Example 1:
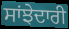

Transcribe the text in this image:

ਸਾਂਝੇਦਾਰੀ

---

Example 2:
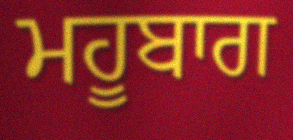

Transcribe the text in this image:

ਮਹੂਬਾਗ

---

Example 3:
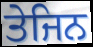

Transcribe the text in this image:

ਤੇਜਿਨ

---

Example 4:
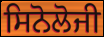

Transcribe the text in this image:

ਸਿਨੋਲੋਜੀ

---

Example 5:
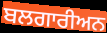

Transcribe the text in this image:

ਬਲਗਾਰੀਅਨ